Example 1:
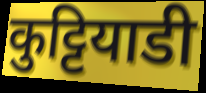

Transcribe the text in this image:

कुट्टियाडी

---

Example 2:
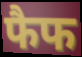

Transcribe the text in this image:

फैफ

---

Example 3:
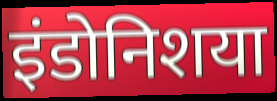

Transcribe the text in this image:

इंडोनिशया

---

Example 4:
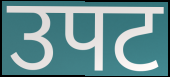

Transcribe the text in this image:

उपट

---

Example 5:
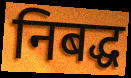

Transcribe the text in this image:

निबद्ध